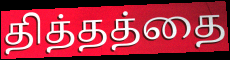
தித்தத்தை